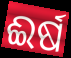
ଈର୍ଷ